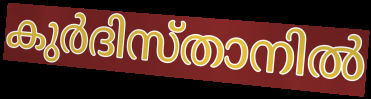
കുർദിസ്താനിൽ